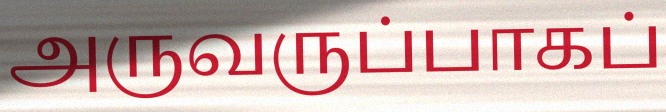
அருவருப்பாகப்